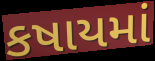
કષાયમાં